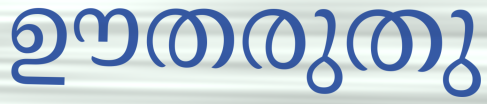
ഊതരുതു